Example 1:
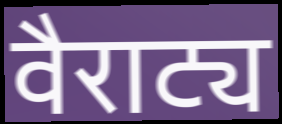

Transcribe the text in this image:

वैराट्य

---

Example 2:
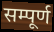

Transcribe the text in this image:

सम्‍पूर्ण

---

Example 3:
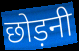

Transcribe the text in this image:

छोड़नी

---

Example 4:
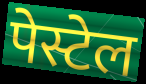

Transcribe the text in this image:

पेस्टेल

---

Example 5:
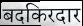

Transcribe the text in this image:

बदकिरदार